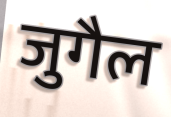
जुगैल